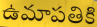
ఉమాపతికి